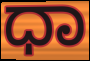
ಧಾ